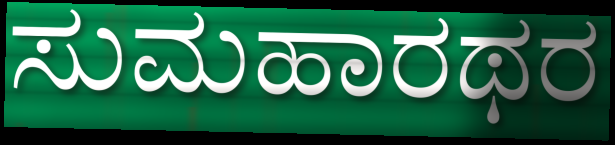
ಸುಮಹಾರಥರ